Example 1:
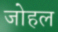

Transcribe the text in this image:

जोहल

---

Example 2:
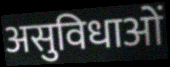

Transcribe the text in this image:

असुविधाओं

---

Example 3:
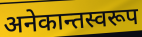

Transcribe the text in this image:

अनेकान्तस्वरूप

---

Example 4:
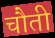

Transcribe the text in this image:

चौती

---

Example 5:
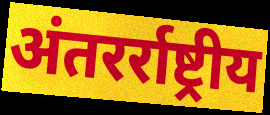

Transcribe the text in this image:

अंतरर्राष्ट्रीय